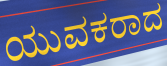
ಯುವಕರಾದ